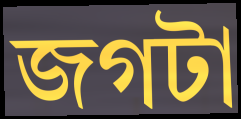
জগটা